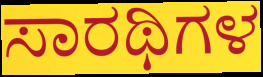
ಸಾರಥಿಗಳ